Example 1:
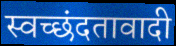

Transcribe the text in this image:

स्वच्छंदतावादी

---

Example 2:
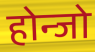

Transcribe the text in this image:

होन्जो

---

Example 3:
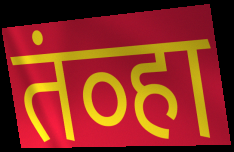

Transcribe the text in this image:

तंव्हा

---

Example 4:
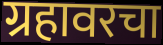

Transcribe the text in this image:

ग्रहावरचा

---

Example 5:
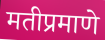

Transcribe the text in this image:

मतीप्रमाणे